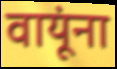
वायूंना